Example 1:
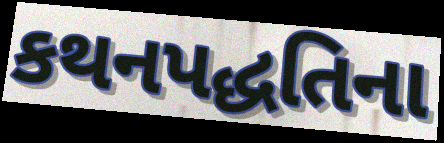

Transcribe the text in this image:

કથનપદ્ધતિના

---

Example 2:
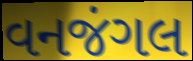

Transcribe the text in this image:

વનજંગલ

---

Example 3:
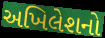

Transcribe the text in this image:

અખિલેશનો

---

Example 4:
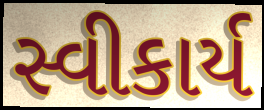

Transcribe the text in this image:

સ્વીકાર્ય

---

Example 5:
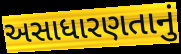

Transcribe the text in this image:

અસાધારણતાનું